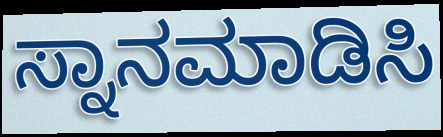
ಸ್ನಾನಮಾಡಿಸಿ